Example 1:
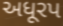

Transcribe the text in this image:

અધૂરપ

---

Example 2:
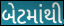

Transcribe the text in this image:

બેટમાંથી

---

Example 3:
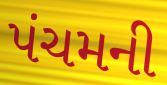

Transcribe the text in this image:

પંચમની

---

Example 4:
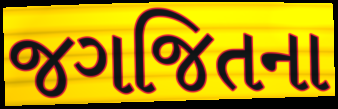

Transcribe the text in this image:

જગજિતના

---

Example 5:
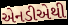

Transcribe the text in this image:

એનડીએથી